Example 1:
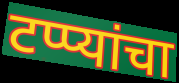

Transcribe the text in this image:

टप्प्यांचा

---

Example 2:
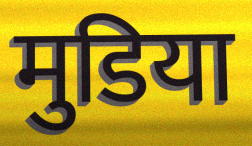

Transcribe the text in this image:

मुडिया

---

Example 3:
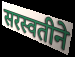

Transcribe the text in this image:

सरस्वतीने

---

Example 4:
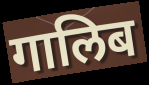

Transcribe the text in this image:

गालिब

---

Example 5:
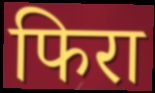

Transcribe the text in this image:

फिरा